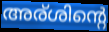
അര്ശിന്റെ